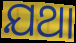
ଯଥା